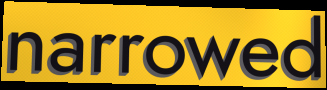
narrowed